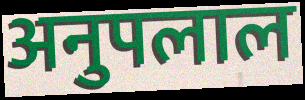
अनुपलाल